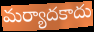
మర్యాదకాదు